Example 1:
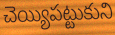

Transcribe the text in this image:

చెయ్యిపట్టుకుని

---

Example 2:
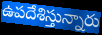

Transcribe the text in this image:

ఉపదేశిస్తున్నారు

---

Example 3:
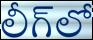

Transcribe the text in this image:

లీగ్‌లో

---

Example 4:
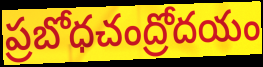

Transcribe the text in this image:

ప్రబోధచంద్రోదయం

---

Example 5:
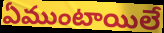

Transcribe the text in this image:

ఏముంటాయిలే